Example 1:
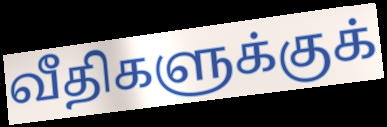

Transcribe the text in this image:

வீதிகளுக்குக்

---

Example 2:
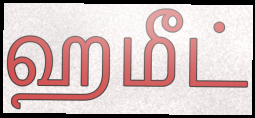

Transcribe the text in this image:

ஹமீட்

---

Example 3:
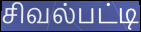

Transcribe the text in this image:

சிவல்பட்டி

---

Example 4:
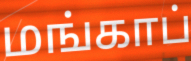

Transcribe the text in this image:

மங்காப்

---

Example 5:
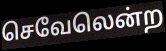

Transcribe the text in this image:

செவேலென்ற